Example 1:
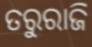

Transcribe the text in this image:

ତରୁରାଜି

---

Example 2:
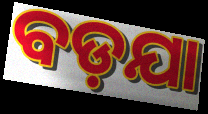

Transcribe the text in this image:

ବଡ଼ଯା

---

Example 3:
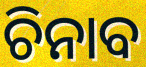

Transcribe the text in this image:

ଚିନାବ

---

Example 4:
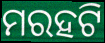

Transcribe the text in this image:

ମରହଟି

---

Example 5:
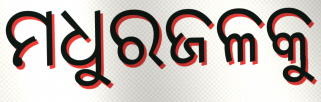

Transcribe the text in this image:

ମଧୁରଜଳକୁ